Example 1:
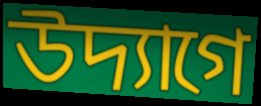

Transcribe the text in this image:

উদ্যাগে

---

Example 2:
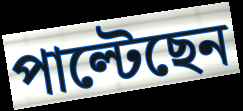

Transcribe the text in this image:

পাল্টেছেন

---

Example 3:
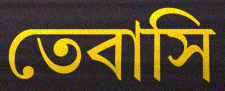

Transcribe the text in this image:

তেবাসি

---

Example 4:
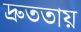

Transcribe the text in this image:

দ্রুততায়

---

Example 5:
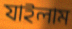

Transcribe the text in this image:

যাইলাম